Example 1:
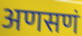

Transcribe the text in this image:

अणसणं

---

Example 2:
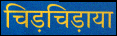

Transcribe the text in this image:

चिड़चिड़ाया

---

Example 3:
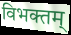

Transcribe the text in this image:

विभक्तम्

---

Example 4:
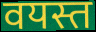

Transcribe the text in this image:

वयस्त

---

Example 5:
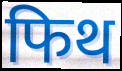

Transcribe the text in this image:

फिथ